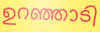
ഉറഞ്ഞാടി